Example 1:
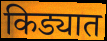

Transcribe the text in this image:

किड्यात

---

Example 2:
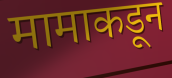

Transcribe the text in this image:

मामाकडून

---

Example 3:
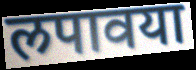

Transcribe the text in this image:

लपावया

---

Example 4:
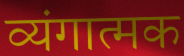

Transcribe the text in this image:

व्यंगात्मक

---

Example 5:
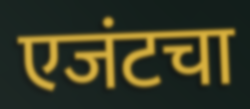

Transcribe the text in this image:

एजंटचा